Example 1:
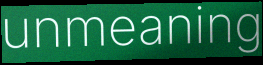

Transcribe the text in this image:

unmeaning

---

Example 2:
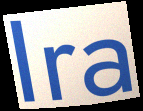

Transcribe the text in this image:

Ira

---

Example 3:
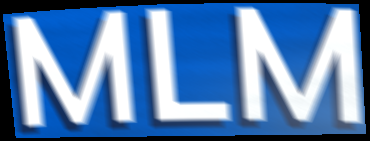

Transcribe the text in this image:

MLM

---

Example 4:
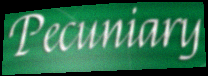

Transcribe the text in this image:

Pecuniary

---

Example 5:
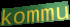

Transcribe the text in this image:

kommu